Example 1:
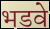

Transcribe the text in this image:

भडवे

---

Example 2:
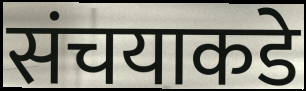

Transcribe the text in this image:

संचयाकडे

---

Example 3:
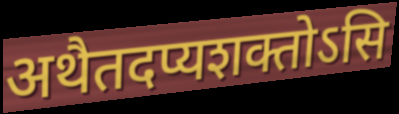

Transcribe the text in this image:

अथैतदप्यशक्तोऽसि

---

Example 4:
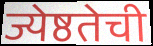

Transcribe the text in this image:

ज्येष्ठतेची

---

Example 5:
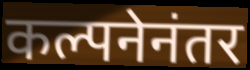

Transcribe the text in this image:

कल्पनेनंतर